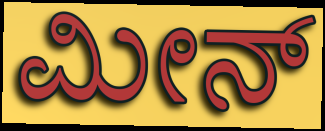
ಮೀನ್